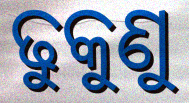
ଢୁକୁଣୁ